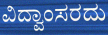
ವಿದ್ವಾಂಸರದು